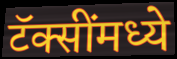
टॅक्सींमध्ये